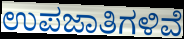
ಉಪಜಾತಿಗಳಿವೆ